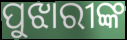
ପୁଝାରୀଙ୍କ